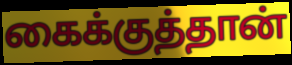
கைக்குத்தான்